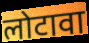
लोटावा